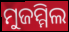
ମୁଜମ୍ମିଲ